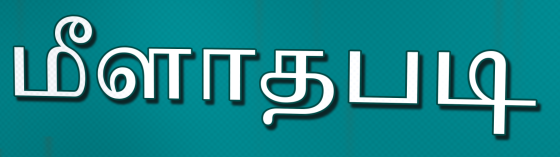
மீளாதபடி